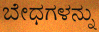
ಬೇಧಗಳನ್ನು